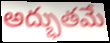
అద్భుతమే